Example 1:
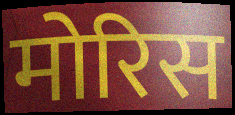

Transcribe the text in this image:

मोरिस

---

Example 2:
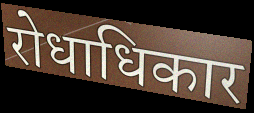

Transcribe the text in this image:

रोधाधिकार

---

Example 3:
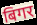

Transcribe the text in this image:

बिगर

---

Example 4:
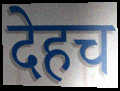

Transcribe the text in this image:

देहच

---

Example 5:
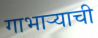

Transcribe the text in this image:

गाभार्‍याची